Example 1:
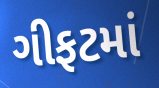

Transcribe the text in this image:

ગીફટમાં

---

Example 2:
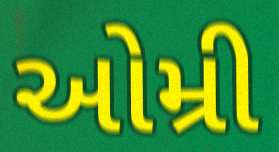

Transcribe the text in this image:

ઓમ્રી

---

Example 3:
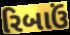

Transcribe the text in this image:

રિબાઉં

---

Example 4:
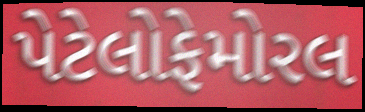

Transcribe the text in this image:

પેટેલોફેમોરલ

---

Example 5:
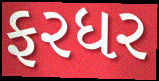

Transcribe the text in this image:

ફરધર